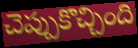
చెప్పుకొచ్చింది